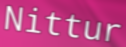
Nittur